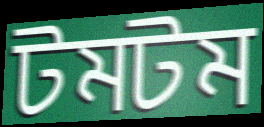
টমটম